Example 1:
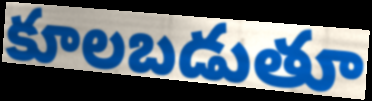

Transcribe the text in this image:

కూలబడుతూ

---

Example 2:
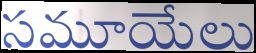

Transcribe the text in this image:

సమూయేలు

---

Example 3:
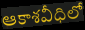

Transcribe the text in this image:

ఆకాశవీధిలో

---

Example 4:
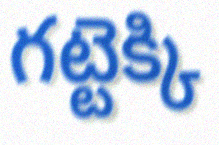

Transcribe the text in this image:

గట్టెక్కి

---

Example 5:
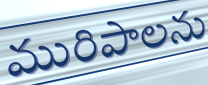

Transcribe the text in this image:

మురిపాలను